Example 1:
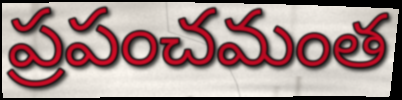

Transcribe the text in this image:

ప్రపంచమంత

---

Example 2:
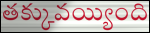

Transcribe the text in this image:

తక్కువయ్యింది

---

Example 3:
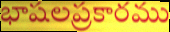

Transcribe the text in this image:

భాషలప్రకారము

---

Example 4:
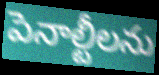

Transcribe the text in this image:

పెనాల్టీలను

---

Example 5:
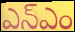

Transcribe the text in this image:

ఎన్ఎం